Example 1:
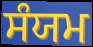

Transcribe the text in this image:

ਸੰਯਮ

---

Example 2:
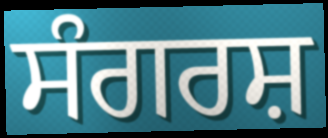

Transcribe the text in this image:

ਸੰਗਰਸ਼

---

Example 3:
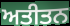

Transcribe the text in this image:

ਅਤੀਤਨ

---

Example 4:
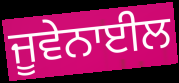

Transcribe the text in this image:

ਜੂਵੇਨਾਈਲ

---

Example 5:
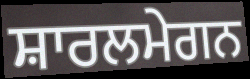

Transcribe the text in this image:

ਸ਼ਾਰਲਮੇਗਨ